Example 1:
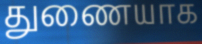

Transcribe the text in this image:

துணையாக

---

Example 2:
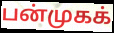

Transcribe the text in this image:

பன்முகக்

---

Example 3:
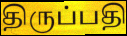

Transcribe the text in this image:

திருப்பதி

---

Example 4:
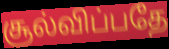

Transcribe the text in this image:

சூல்விப்பதே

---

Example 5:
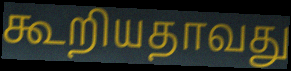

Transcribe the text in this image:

கூறியதாவது